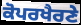
ਕੋਪਰਖੈਰਣੇ